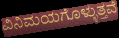
ವಿನಿಮಯಗೊಳ್ಳುತ್ತವೆ